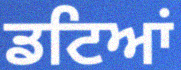
ਡਟਿਆਂ